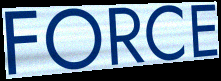
FORCE